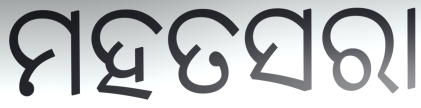
ମହତସରା